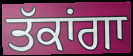
ਤੱਕਾਂਗਾ